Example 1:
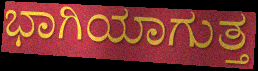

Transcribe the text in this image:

ಭಾಗಿಯಾಗುತ್ತ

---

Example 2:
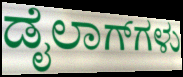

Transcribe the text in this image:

ಡೈಲಾಗ್‌ಗಳು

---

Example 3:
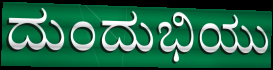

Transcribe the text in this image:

ದುಂದುಭಿಯು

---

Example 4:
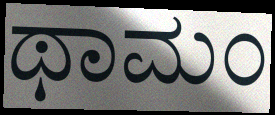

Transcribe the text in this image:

ಥಾಮಂ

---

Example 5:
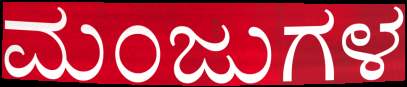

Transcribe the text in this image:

ಮಂಜುಗಳ